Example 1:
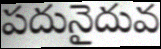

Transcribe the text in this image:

పదునైదువ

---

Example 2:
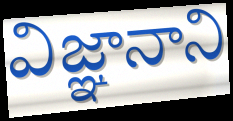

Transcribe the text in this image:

విజ్ఞానాని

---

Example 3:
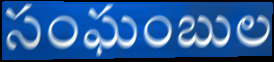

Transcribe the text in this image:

సంఘంబుల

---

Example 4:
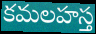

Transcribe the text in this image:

కమలహస్త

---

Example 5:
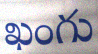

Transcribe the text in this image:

ఖంగు